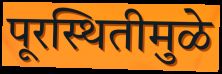
पूरस्थितीमुळे